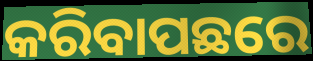
କରିବାପଛରେ